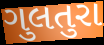
ગુલતુરા